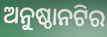
ଅନୁଷ୍ଠାନଟିର